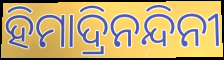
ହିମାଦ୍ରିନନ୍ଦିନୀ